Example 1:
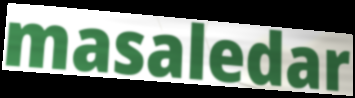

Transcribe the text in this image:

masaledar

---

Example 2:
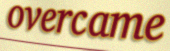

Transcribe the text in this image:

overcame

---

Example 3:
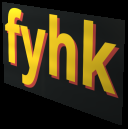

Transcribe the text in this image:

fyhk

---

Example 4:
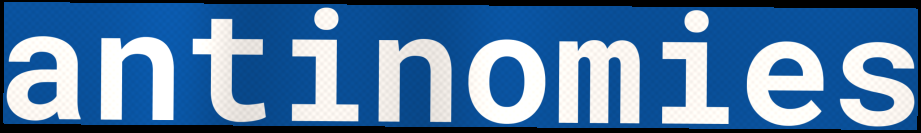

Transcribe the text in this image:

antinomies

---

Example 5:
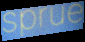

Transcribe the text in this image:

sprue